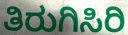
ತಿರುಗಿಸಿರಿ